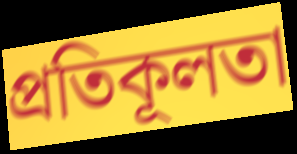
প্রতিকূলতা